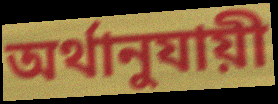
অর্থানুযায়ী